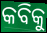
କବିକୁ